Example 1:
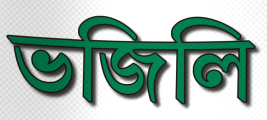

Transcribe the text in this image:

ভজিলি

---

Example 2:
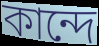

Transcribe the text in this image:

কান্দে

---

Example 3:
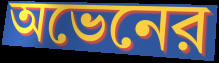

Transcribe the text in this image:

অভেনের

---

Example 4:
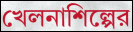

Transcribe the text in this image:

খেলনাশিল্পের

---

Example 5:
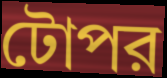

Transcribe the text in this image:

টোপর